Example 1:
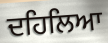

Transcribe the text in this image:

ਦਹਿਲਿਆ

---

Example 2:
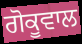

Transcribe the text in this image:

ਗੋਕੂਵਾਲ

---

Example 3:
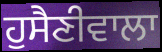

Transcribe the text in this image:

ਹੁਸੈਣੀਵਾਲਾ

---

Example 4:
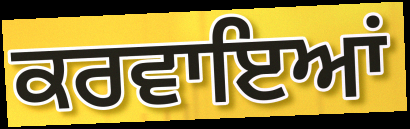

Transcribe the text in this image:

ਕਰਵਾਇਆਂ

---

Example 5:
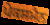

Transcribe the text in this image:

ਪੇਕਸਮੈਨ